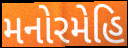
મનોરમેહિ